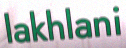
lakhlani